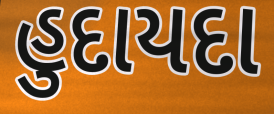
હુદાયદા